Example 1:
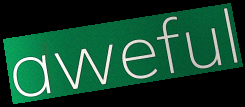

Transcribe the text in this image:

aweful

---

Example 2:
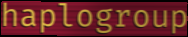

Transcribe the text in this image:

haplogroup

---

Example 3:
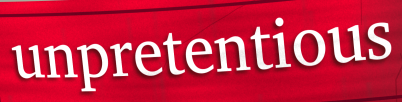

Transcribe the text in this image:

unpretentious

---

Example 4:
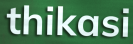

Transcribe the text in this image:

thikasi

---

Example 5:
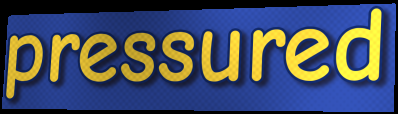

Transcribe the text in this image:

pressured